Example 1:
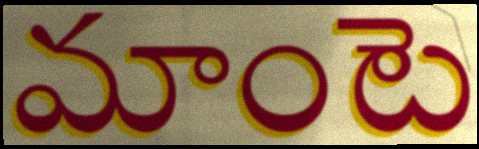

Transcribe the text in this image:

మాంటె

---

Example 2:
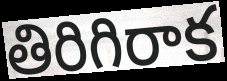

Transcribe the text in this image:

తిరిగిరాక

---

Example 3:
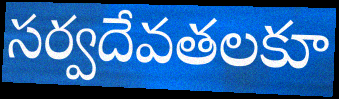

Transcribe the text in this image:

సర్వదేవతలకూ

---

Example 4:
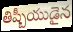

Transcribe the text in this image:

తిష్బీయుడైన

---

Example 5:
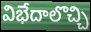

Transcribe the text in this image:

విభేదాలొచ్చి